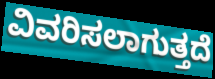
ವಿವರಿಸಲಾಗುತ್ತದೆ